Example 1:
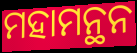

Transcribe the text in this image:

ମହାମନ୍ଥନ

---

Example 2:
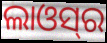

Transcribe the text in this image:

ଲାଓସ୍‌ର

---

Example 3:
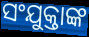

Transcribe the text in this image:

ସଂଯୁକ୍ତାଙ୍କ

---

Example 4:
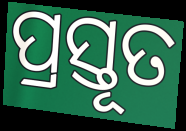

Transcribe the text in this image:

ପ୍ରସ୍ତୂତ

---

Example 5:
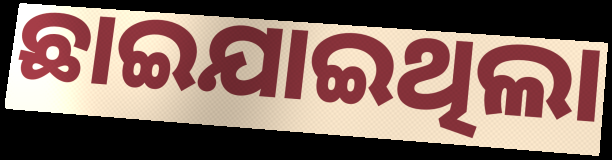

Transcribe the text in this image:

ଛାଇଯାଇଥିଲା